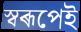
স্বৰূপেই